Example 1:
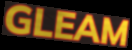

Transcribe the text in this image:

GLEAM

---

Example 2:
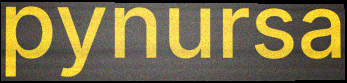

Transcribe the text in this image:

pynursa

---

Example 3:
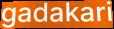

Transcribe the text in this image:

gadakari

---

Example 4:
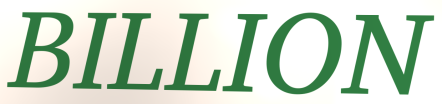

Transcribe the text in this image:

BILLION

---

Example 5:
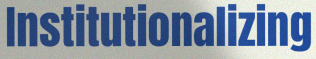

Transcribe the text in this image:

Institutionalizing